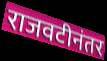
राजवटीनंतर